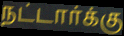
நட்டார்க்கு